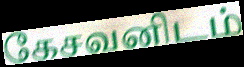
கேசவனிடம்